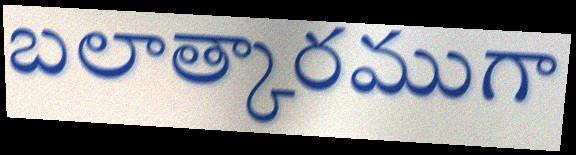
బలాత్కారముగా